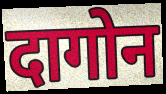
दागोन